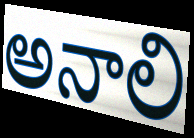
అనాలి